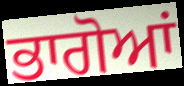
ਭਾਗੋਆਂ